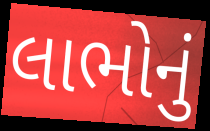
લાભોનું